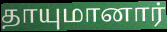
தாயுமானார்